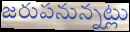
జరుపనున్నట్లు